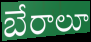
బేరాలూ